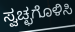
ಸ್ವಚ್ಛಗೊಳಿಸಿ